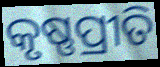
କୃଷ୍ଣପ୍ରୀତି